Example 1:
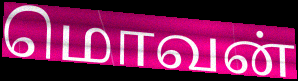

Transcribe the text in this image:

மொவன்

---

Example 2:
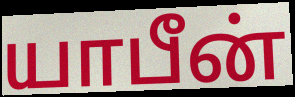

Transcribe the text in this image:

யாபீன்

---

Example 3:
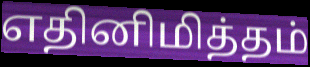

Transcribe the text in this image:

எதினிமித்தம்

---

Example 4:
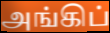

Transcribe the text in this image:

அங்கிப்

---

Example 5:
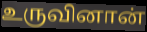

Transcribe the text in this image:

உருவினான்